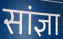
सांज्ञा